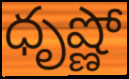
ధృష్ణో